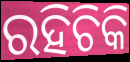
ରହିଚିକି